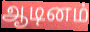
ஆடினம்